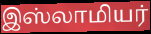
இஸ்லாமியர்